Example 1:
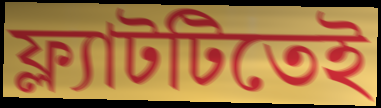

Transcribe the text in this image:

ফ্ল্যাটটিতেই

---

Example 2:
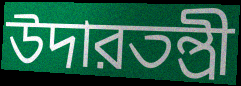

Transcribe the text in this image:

উদারতন্ত্রী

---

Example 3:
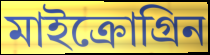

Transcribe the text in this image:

মাইক্রোগ্রিন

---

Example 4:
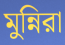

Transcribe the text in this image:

মুন্নিরা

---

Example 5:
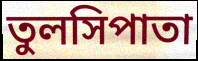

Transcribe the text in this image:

তুলসিপাতা